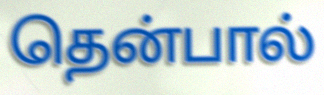
தென்பால்